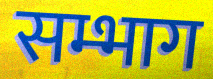
सम्भाग